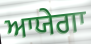
ਆਯੇਗਾ